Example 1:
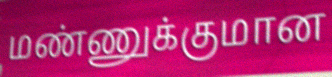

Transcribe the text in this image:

மண்ணுக்குமான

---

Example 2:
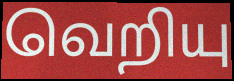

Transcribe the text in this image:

வெறியு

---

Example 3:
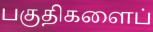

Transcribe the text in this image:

பகுதிகளைப்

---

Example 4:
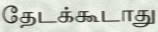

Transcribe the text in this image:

தேடக்கூடாது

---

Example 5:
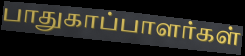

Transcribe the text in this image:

பாதுகாப்பாளர்கள்